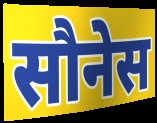
सौनेस